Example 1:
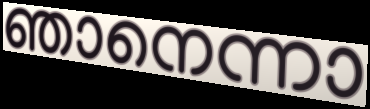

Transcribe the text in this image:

ഞാനെന്നാ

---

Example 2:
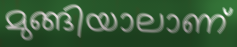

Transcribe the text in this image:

മുങ്ങിയാലാണ്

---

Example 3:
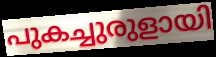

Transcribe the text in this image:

പുകച്ചുരുളായി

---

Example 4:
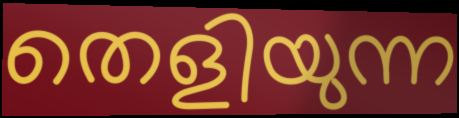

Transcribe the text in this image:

തെളിയുന്ന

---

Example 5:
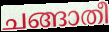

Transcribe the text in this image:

ചങ്ങാതീ